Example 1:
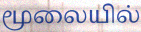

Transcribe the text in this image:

மூலையில்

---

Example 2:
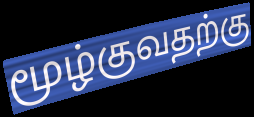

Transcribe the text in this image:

மூழ்குவதற்கு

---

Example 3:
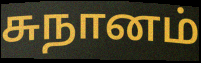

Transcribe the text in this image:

சுநானம்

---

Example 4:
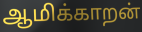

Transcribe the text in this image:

ஆமிக்காறன்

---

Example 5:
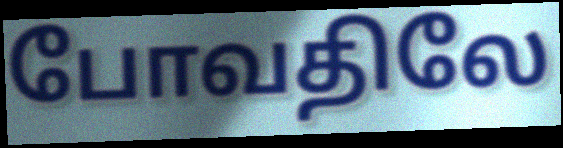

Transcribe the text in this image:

போவதிலே